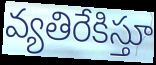
వ్యతిరేకిస్తూ